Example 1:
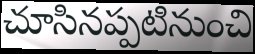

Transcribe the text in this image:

చూసినప్పటినుంచి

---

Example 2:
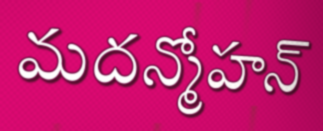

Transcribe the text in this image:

మదన్మోహన్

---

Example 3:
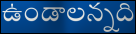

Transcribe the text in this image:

ఉండాలన్నది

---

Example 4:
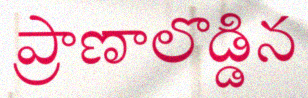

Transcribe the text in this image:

ప్రాణాలొడ్డిన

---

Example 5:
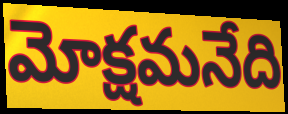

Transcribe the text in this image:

మోక్షమనేది